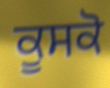
ਕੂਸਕੋ